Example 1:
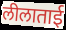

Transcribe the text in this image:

लीलाताई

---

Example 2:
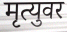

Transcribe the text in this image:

मृत्युवर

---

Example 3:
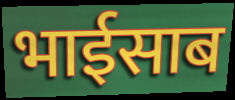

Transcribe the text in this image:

भाईसाब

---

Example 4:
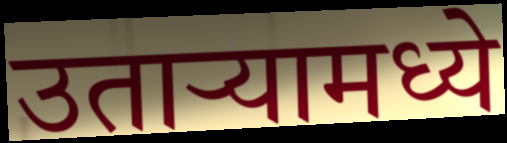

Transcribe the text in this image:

उताऱ्यामध्ये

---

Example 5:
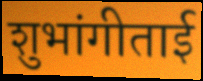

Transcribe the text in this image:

शुभांगीताई